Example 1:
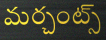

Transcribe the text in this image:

మర్చంట్స్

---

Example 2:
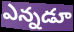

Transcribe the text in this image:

ఎన్నడూ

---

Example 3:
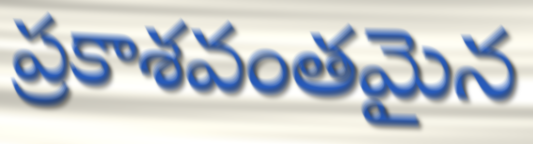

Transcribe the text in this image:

ప్రకాశవంతమైన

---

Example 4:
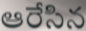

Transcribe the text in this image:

ఆరేసిన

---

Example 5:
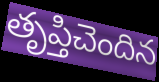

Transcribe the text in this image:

తృప్తిచెందిన